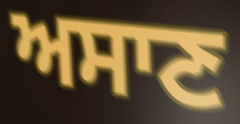
ਅਸਾਣ